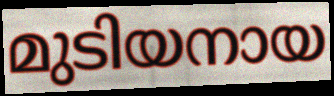
മുടിയനായ